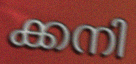
ക്കനി